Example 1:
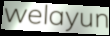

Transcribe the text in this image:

welayun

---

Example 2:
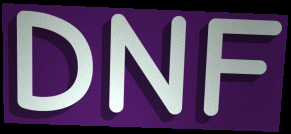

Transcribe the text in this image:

DNF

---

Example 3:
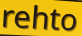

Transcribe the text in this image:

rehto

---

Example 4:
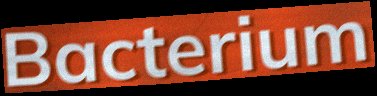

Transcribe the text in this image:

Bacterium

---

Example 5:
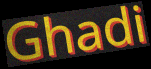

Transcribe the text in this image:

Ghadi